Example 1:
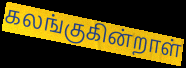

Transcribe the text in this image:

கலங்குகின்றாள்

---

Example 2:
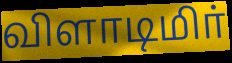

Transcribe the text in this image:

விளாடிமிர்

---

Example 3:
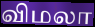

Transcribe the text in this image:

விமலா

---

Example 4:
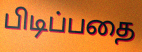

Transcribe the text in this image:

பிடிப்பதை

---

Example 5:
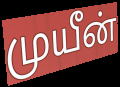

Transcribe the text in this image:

முயீன்